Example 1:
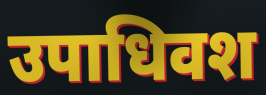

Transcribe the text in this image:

उपाधिवश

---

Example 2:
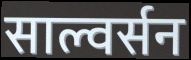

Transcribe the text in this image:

साल्वर्सन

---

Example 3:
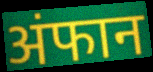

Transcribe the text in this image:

अंफान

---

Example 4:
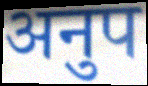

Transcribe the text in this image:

अनुप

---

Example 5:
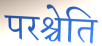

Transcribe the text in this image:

परश्चेति